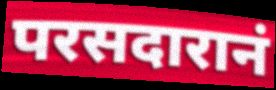
परसदारानं